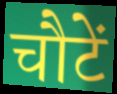
चौटें